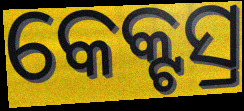
କେକ୍ଟସ୍ର